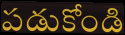
పడుకోండి